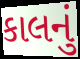
કાલનું